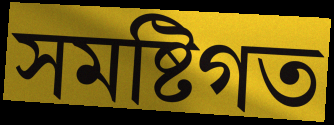
সমষ্টিগত